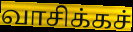
வாசிக்கச்